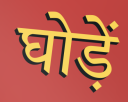
घोड़ें